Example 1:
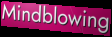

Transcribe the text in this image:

Mindblowing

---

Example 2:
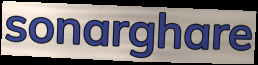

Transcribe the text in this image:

sonarghare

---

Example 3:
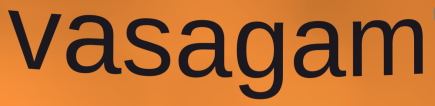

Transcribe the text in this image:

vasagam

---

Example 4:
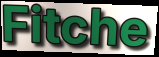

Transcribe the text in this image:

Fitche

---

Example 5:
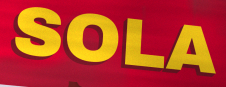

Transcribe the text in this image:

SOLA